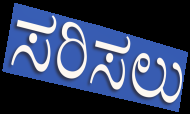
ಸರಿಸಲು